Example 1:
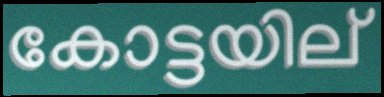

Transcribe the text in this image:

കോട്ടയില്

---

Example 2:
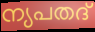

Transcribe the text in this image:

ന്യപതദ്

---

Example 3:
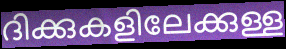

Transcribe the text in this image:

ദിക്കുകളിലേക്കുള്ള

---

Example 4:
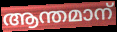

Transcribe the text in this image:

ആന്തമാന്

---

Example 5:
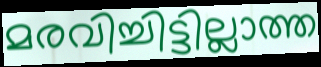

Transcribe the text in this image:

മരവിച്ചിട്ടില്ലാത്ത